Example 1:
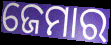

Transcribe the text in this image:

ଜେମାର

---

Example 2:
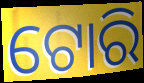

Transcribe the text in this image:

ଟୋରି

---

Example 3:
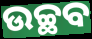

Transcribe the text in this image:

ଉଚ୍ଛବ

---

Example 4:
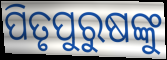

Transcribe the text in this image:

ପିତୃପୁରୁଷଙ୍କୁ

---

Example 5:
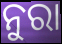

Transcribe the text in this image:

ନୁରା